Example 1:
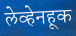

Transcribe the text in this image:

लेव्हेनहूक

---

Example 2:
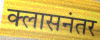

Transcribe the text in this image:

क्लासनंतर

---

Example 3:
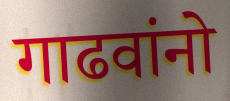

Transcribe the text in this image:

गाढवांनो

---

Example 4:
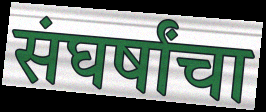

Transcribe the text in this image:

संघर्षांचा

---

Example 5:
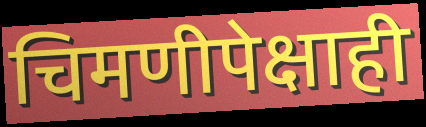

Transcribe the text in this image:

चिमणीपेक्षाही